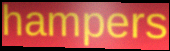
hampers